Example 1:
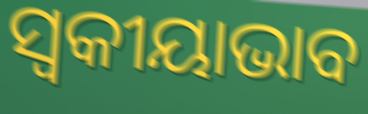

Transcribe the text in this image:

ସ୍ୱକୀୟାଭାବ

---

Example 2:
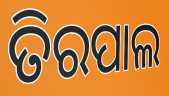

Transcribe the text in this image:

ତିରପାଲ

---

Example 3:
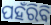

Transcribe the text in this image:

ପହଁରିବି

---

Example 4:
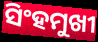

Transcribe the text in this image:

ସିଂହମୁଖୀ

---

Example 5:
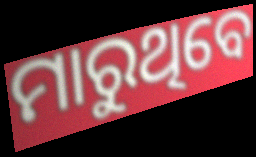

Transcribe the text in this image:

ମାରୁଥିବେ